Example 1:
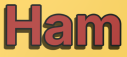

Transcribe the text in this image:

Ham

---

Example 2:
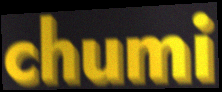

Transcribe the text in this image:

chumi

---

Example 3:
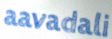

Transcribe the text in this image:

aavadali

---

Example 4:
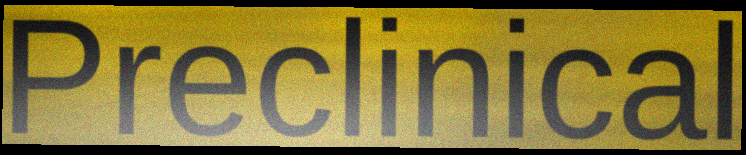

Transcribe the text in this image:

Preclinical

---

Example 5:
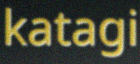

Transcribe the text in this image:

katagi